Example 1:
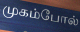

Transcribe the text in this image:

முகம்போல்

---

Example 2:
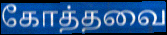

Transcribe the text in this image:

கோத்தவை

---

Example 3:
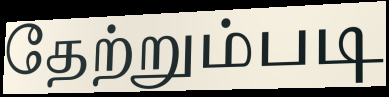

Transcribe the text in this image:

தேற்றும்படி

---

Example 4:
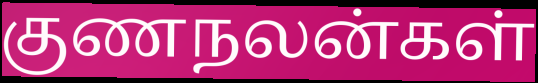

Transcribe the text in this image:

குணநலன்கள்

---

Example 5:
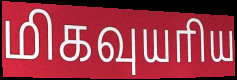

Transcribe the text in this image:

மிகவுயரிய